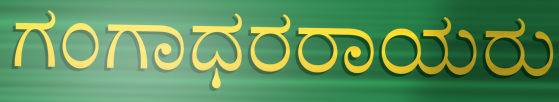
ಗಂಗಾಧರರಾಯರು